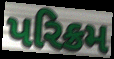
પરિક્રમ